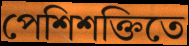
পেশিশক্তিতে